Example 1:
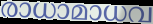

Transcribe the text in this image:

രാധാമാധവ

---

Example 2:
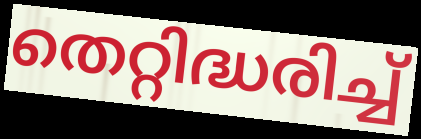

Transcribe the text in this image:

തെറ്റിദ്ധരിച്ച്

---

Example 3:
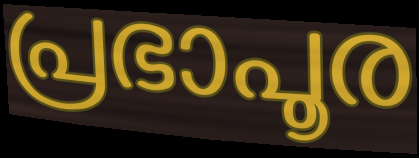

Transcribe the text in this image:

പ്രഭാപൂര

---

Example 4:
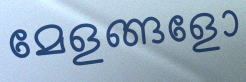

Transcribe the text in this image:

മേളങ്ങളോ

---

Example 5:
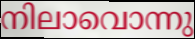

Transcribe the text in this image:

നിലാവൊന്നു